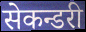
सेकन्डरी